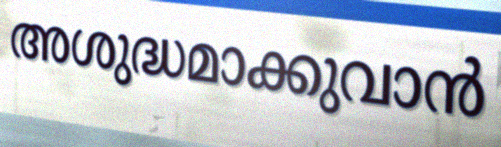
അശുദ്ധമാക്കുവാൻ